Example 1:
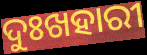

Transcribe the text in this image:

ଦୁଃଖହାରୀ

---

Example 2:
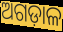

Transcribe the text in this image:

ଅଗଡ଼ାଳ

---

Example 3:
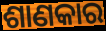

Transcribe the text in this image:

ଶାଣକାର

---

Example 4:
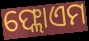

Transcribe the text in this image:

ଫ୍ଲୋଏମ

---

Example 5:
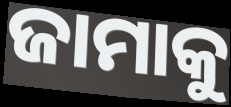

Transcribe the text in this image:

ଜାମାକୁ